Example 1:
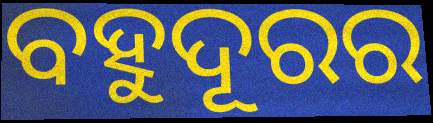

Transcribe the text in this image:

ବହୁଦୂରର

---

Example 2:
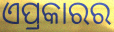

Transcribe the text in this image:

ଏପ୍ରକାରର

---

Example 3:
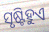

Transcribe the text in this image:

ସୃଷ୍ଟିହୁଏ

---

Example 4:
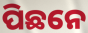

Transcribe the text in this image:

ପିଛନେ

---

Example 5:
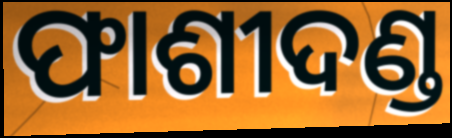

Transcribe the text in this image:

ଫାଶୀଦଣ୍ଡ